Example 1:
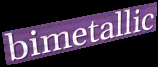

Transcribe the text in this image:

bimetallic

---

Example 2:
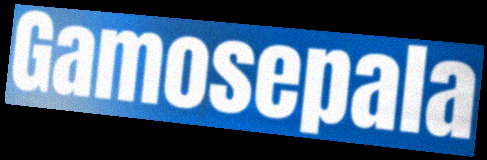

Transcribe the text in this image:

Gamosepala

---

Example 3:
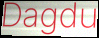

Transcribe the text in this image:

Dagdu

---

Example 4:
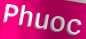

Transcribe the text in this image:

Phuoc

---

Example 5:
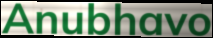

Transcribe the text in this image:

Anubhavo